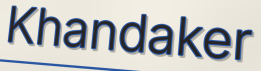
Khandaker